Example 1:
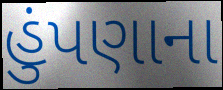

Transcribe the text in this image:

હુંપણાના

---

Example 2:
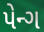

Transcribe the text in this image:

પેન્ગ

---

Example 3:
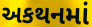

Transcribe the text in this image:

અકથનમાં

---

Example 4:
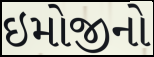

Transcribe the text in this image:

ઇમોજીનો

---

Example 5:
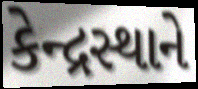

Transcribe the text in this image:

કેન્દ્રસ્થાને